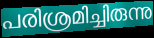
പരിശ്രമിച്ചിരുന്നു